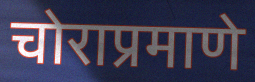
चोराप्रमाणे